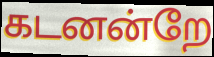
கடனன்றே